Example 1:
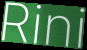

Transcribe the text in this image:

Rini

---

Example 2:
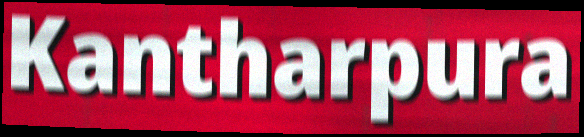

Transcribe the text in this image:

Kantharpura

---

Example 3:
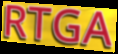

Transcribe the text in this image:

RTGA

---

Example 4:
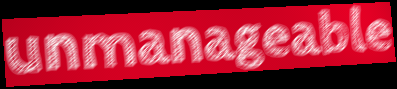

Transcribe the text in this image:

unmanageable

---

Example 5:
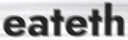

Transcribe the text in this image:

eateth